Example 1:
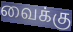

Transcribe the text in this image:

வைக்கு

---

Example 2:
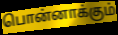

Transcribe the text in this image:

பொன்னாக்கும்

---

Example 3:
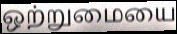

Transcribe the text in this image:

ஒற்றுமையை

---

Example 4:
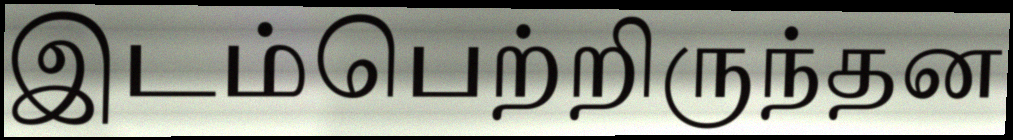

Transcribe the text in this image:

இடம்பெற்றிருந்தன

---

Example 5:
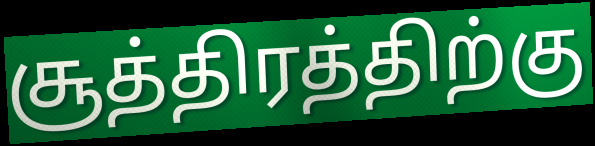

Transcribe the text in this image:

சூத்திரத்திற்கு